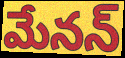
మేనన్